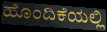
ಹೊಂದಿಕೆಯಲ್ಲಿ